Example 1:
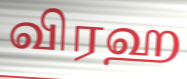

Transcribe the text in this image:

விரஹ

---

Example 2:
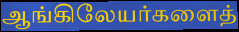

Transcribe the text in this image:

ஆங்கிலேயர்களைத்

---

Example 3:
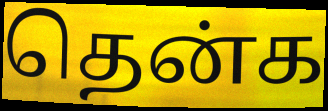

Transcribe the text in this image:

தென்க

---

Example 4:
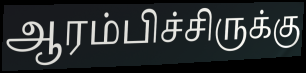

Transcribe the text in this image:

ஆரம்பிச்சிருக்கு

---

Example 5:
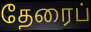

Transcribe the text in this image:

தேரைப்